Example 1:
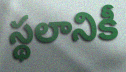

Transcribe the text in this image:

స్థలానికీ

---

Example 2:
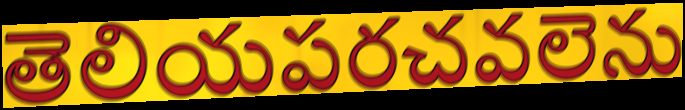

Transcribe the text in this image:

తెలియపరచవలెను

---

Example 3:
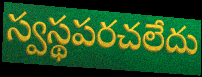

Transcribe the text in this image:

స్వస్థపరచలేదు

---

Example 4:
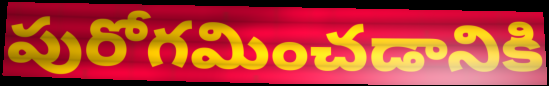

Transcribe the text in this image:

పురోగమించడానికి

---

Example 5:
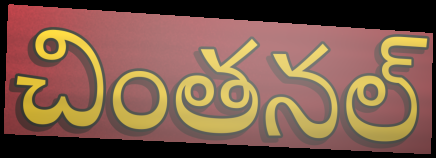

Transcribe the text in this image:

చింతనల్